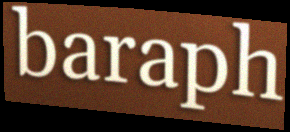
baraph